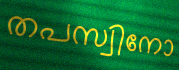
തപസ്വിനോ